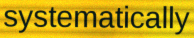
systematically